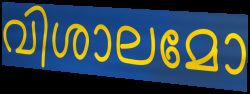
വിശാലമോ